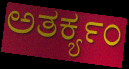
ಅತರ್ಕ್ಯಂ